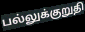
பல்லுக்குறுதி